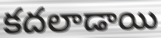
కదలాడాయి